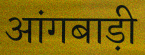
आंगबाड़ी